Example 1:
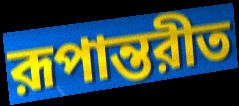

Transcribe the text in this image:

রূপান্তরীত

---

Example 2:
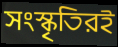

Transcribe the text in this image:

সংস্কৃতিরই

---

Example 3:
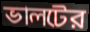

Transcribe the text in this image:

ভালটের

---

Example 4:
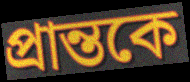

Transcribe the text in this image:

প্রান্তকে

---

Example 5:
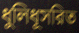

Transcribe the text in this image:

ধুলিধূসরিত